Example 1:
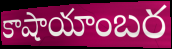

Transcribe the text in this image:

కాషాయాంబర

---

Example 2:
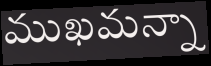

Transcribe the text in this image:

ముఖమన్నా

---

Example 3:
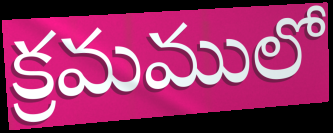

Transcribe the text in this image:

క్రమములో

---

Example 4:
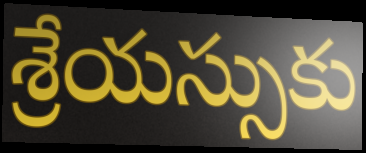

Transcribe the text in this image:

శ్రేయస్సుకు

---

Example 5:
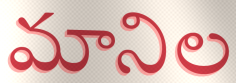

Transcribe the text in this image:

మానిల